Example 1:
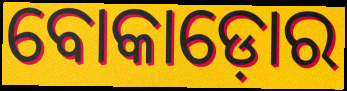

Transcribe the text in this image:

ବୋକାଡ଼ୋର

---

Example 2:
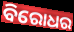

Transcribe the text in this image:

ବିରୋଧର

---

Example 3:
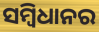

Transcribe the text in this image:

ସମ୍ବିଧାନର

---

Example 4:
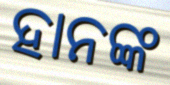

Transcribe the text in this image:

ହାନଙ୍କ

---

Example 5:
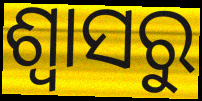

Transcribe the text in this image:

ଶ୍ୱାସରୁ